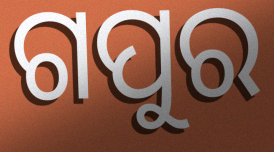
ଗପୁର